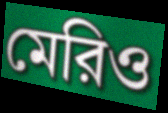
মেরিও